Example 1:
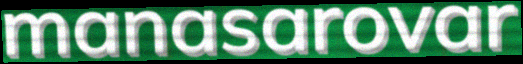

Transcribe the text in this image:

manasarovar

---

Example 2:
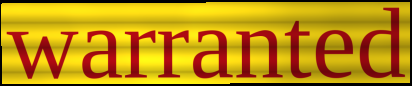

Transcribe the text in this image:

warranted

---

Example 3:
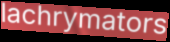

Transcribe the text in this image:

lachrymators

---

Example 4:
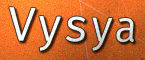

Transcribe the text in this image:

Vysya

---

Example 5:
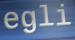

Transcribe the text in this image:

egli